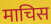
माचिस